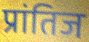
प्रांतिज